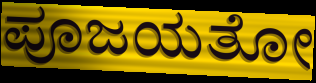
ಪೂಜಯತೋ